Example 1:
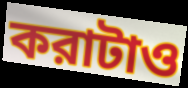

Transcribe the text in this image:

করাটাও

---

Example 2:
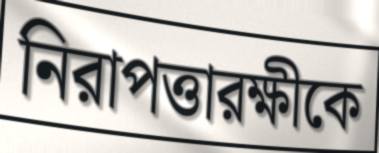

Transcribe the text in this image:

নিরাপত্তারক্ষীকে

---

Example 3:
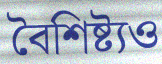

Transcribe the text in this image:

বৈশিষ্ট্যও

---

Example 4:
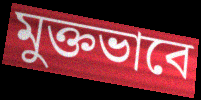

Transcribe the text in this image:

মুক্তভাবে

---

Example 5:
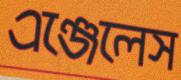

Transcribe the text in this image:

এঞ্জেলেস